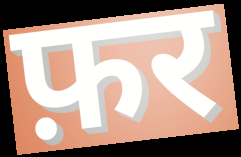
फ़र